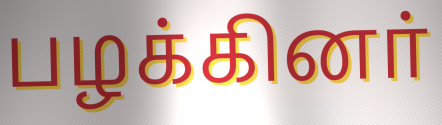
பழக்கினர்